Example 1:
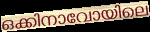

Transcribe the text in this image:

ഒക്കിനാവോയിലെ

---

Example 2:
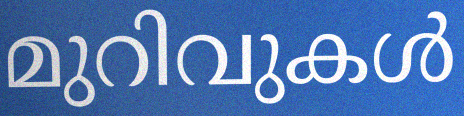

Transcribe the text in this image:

മുറിവുകൾ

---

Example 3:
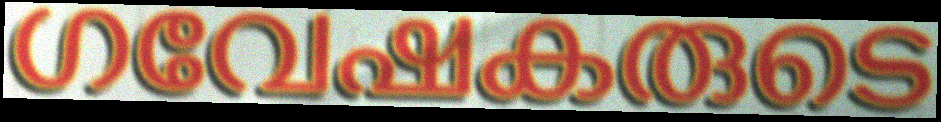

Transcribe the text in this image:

ഗവേഷകരുടെ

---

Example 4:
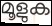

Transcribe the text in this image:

മൂളുക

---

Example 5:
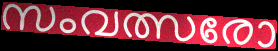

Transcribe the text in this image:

സംവത്സരോ